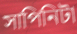
সাপিনিটা